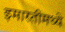
इमारतीमध्ये